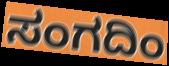
ಸಂಗದಿಂ